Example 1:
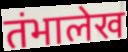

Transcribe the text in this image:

तंभालेख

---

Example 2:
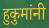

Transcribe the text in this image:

हुकुमांनी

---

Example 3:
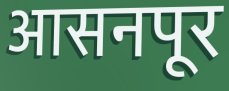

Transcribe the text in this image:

आसनपूर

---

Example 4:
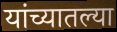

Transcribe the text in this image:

यांच्यातल्या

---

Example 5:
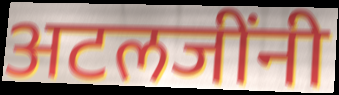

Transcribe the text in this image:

अटलजींनी